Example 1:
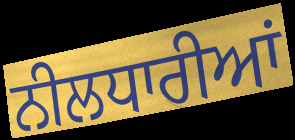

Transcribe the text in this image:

ਨੀਲਧਾਰੀਆਂ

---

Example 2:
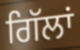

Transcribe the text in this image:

ਗਿੱਲਾਂ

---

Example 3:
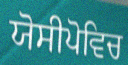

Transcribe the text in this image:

ਯੋਸੀਪੋਵਿਚ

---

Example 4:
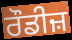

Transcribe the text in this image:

ਰੌਡੀਜ਼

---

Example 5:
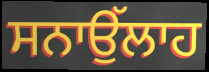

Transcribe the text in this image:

ਸਨਾਉੱਲਾਹ